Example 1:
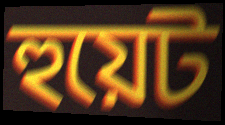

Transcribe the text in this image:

হুয়েট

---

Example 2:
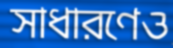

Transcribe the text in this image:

সাধারণেও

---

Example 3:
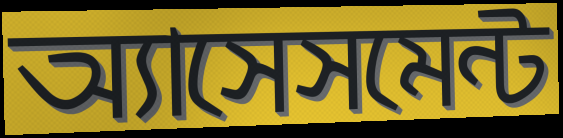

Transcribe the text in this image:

অ্যাসেসমেন্ট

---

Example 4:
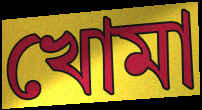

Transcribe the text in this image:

খোমা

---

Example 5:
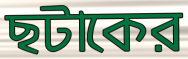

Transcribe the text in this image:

ছটাকের